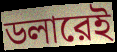
ডলারেই